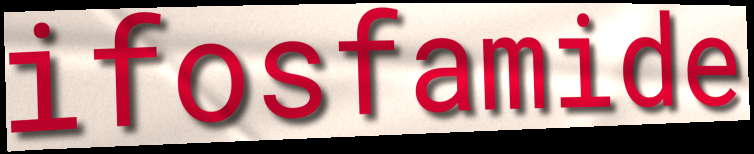
ifosfamide